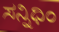
ಸನ್ನಿಧಿಂ